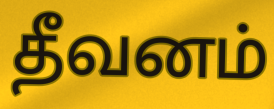
தீவனம்